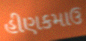
હીણકમાઉ